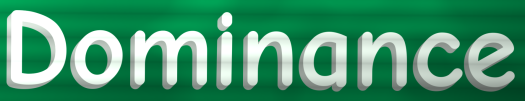
Dominance